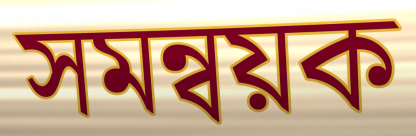
সমন্বয়ক